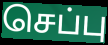
செப்பு